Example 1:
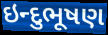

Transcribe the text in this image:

ઇન્દુભૂષણ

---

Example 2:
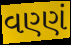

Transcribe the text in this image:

વણ્ણં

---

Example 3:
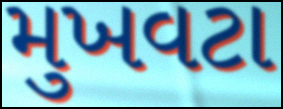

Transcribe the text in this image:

મુખવટા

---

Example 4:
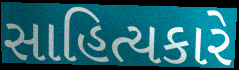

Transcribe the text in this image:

સાહિત્યકારે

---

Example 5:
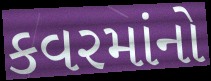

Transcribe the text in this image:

કવરમાંનો